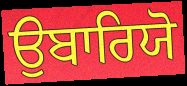
ਉਬਾਰਿਯੋ